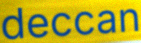
deccan